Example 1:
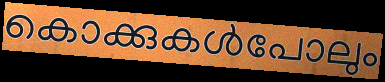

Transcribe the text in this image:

കൊക്കുകൾപോലും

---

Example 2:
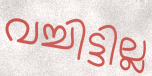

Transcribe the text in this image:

വച്ചിട്ടില്ല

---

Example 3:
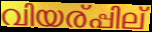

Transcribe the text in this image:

വിയര്പ്പില്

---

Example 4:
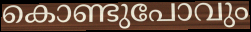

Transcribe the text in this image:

കൊണ്ടുപോവും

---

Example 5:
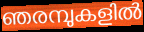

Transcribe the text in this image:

ഞരമ്പുകളിൽ